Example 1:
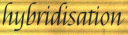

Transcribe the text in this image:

hybridisation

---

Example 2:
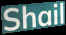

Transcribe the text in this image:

Shail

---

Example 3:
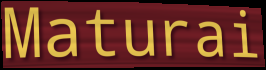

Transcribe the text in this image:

Maturai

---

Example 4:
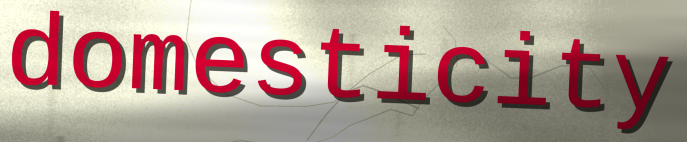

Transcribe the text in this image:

domesticity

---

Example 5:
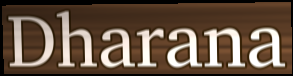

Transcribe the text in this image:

Dharana